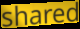
shared